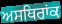
ਅਸਥਿਰਾਂਕ